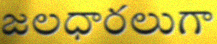
జలధారలుగా